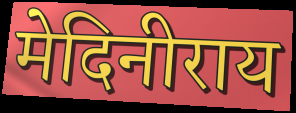
मेदिनीराय